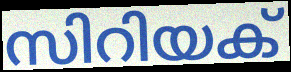
സിറിയക്